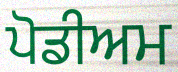
ਪੋਡੀਅਮ